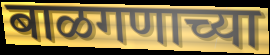
बाळगणाच्या